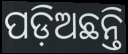
ପଡ଼ିଅଛନ୍ତି